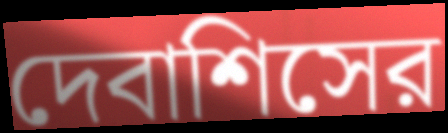
দেবাশিসের